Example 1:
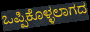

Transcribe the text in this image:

ಒಪ್ಪಿಕೊಳ್ಳಲಾಗದ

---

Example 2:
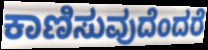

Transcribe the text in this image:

ಕಾಣಿಸುವುದೆಂದರೆ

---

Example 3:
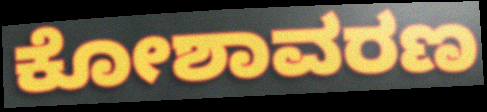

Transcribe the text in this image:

ಕೋಶಾವರಣ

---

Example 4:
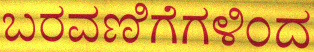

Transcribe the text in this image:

ಬರವಣಿಗೆಗಳಿಂದ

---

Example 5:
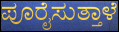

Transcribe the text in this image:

ಪೂರೈಸುತ್ತಾಳೆ